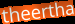
theertha